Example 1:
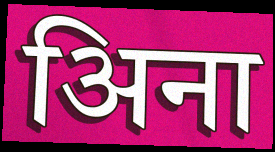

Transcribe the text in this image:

अिना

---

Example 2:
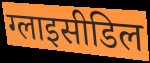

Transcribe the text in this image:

ग्लाइसीडिल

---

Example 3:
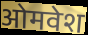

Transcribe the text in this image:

ओमवेश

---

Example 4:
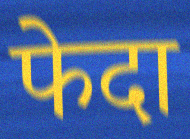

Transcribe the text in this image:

फेदा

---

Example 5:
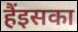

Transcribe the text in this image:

हैंइसका